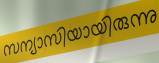
സന്യാസിയായിരുന്നു